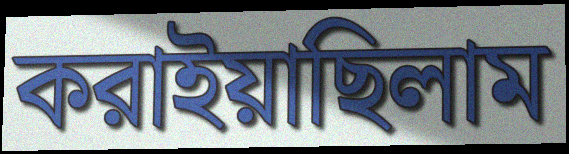
করাইয়াছিলাম